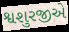
શ્વશુરજીએ